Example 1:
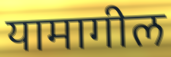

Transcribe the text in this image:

यामागील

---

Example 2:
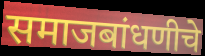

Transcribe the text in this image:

समाजबांधणीचे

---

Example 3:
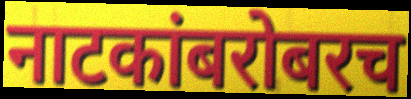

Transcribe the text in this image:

नाटकांबरोबरच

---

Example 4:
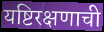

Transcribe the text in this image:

यष्टिरक्षणाची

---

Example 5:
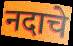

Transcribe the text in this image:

नदाचे